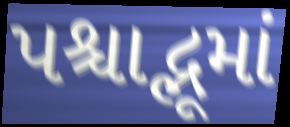
પશ્ચાદ્ભૂમાં